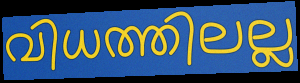
വിധത്തിലല്ല